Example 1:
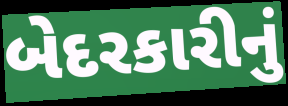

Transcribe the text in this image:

બેદરકારીનું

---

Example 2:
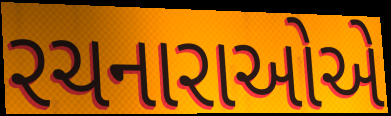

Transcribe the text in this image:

રચનારાઓએ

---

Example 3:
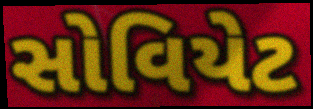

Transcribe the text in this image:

સોવિયેટ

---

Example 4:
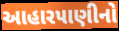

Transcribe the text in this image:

આહારપાણીનો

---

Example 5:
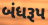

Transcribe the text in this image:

બંધરૂપ